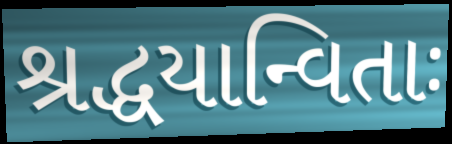
શ્રદ્ધયાન્વિતાઃ